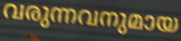
വരുന്നവനുമായ